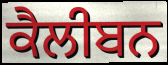
ਕੈਲੀਬਨ